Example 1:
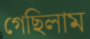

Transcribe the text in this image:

গেছিলাম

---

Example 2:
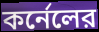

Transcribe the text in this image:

কর্নেলের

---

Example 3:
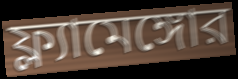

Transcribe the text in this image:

ফ্ল্যামেঙ্গোর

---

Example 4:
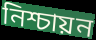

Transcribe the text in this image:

নিশ্চায়ন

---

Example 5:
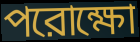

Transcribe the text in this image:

পরোক্ষো